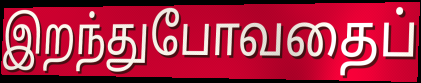
இறந்துபோவதைப்